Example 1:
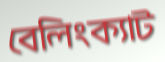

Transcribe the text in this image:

বেলিংক্যাট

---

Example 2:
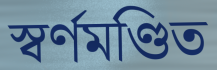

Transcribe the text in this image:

স্বর্ণমণ্ডিত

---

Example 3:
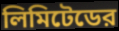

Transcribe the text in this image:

লিমিটেডের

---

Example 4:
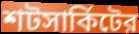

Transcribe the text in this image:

শটসার্কিটের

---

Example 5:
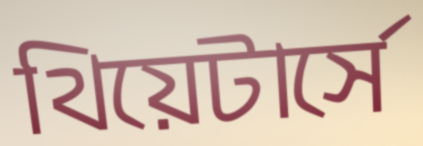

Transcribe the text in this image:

থিয়েটার্সে